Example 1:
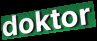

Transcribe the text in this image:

doktor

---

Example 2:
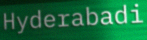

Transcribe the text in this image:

Hyderabadi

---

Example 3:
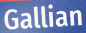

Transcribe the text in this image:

Gallian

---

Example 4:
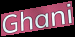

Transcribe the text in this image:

Ghani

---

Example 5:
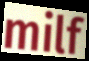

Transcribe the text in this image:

milf